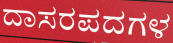
ದಾಸರಪದಗಳ